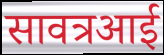
सावत्रआई